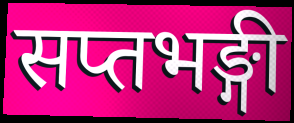
सप्तभङ्गी